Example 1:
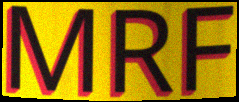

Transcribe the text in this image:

MRF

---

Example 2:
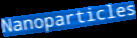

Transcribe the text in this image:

Nanoparticles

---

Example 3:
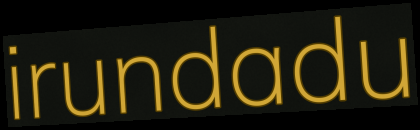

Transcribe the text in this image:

irundadu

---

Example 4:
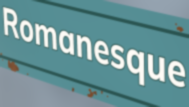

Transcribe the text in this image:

Romanesque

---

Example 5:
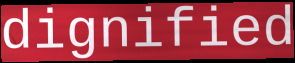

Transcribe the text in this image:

dignified